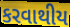
કરવાથીય